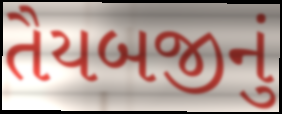
તૈયબજીનું